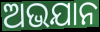
ଅଭଯାନ